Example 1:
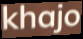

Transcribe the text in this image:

khajo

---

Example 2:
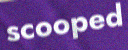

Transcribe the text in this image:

scooped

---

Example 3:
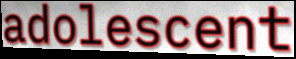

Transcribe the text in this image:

adolescent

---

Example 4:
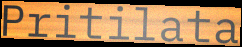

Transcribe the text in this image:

Pritilata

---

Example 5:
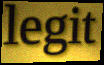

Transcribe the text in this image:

legit